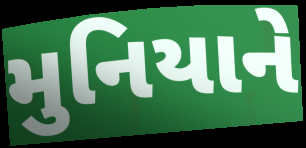
મુનિયાને